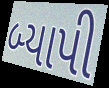
બ્યાપી